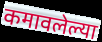
कमावलेल्या